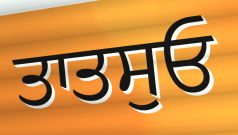
ਤਾਤਸੁਓ